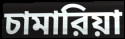
চামারিয়া